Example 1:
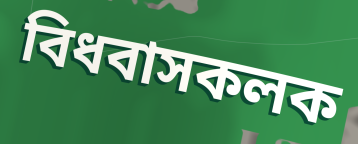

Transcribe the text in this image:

বিধবাসকলক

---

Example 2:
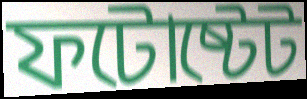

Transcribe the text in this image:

ফটোষ্টেট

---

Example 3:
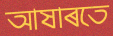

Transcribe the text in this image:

আষাৰতে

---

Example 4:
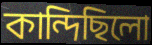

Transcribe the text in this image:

কান্দিছিলো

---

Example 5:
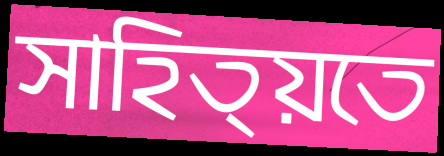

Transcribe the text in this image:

সাহিত্য়তে